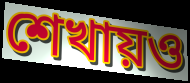
শেখায়ও